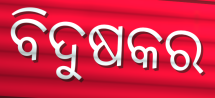
ବିଦୁଷକର